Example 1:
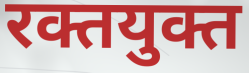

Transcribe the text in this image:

रक्तयुक्त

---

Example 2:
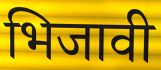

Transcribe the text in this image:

भिजावी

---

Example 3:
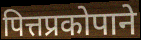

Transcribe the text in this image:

पित्तप्रकोपाने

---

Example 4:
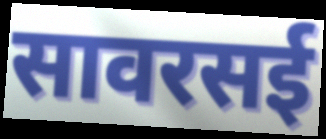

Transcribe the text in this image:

सावरसई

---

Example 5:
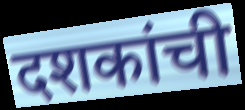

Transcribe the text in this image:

दशकांची